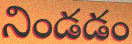
నిండడం